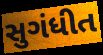
સુગંધીત